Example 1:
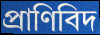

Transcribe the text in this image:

প্রাণিবিদ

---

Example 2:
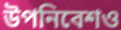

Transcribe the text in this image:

উপনিবেশও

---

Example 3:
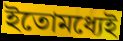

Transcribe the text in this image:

ইতোমধ্যেই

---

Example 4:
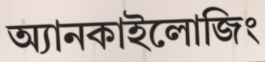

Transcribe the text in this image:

অ্যানকাইলোজিং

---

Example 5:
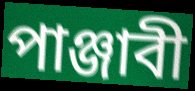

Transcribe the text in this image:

পাঞ্জাবী